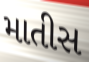
માતીસ